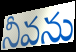
నీవను